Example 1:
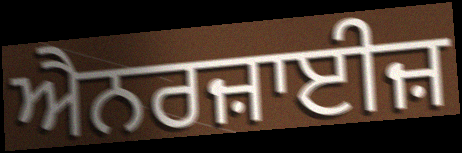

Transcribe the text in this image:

ਐਨਰਜ਼ਾਈਜ਼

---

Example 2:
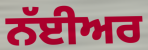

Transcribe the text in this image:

ਨੱਈਅਰ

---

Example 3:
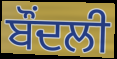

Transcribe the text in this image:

ਬੌਂਦਲੀ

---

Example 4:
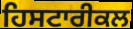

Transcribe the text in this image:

ਹਿਸਟਾਰੀਕਲ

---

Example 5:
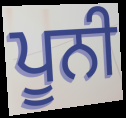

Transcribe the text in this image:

ਪੂਨੀ